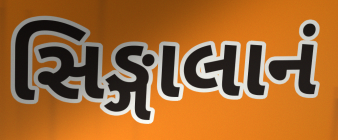
સિઙ્ગાલાનં